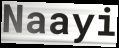
Naayi